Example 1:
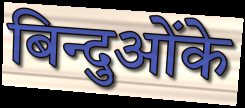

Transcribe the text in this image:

बिन्दुओंके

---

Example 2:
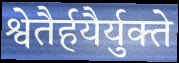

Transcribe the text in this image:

श्वेतैर्हयैर्युक्ते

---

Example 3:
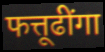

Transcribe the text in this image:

फत्तूढींगा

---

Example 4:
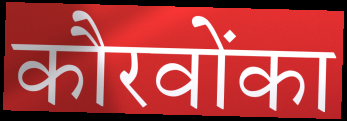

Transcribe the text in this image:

कौरवोंका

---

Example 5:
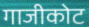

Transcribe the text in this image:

गाजीकोट